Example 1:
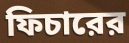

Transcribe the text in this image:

ফিচারের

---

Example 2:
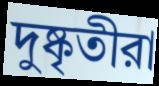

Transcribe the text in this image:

দুষ্কৃতীরা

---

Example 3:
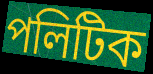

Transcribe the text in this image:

পলিটিক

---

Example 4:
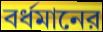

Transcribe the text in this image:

বর্ধমানের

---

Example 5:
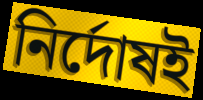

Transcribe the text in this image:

নির্দোষই